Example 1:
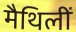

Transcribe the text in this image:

मैथिलीं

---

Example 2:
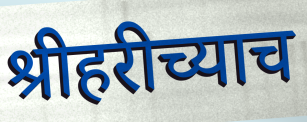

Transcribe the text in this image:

श्रीहरीच्याच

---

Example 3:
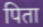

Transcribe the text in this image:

पिता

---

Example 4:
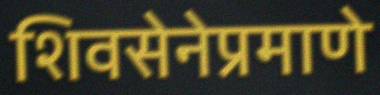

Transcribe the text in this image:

शिवसेनेप्रमाणे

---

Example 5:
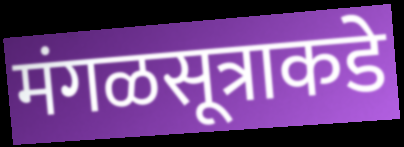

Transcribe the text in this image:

मंगळसूत्राकडे